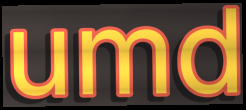
umd